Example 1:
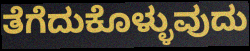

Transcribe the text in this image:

ತೆಗೆದುಕೊಳ್ಳುವುದು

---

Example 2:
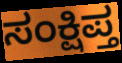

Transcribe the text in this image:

ಸಂಕ್ಷಿಪ್ತ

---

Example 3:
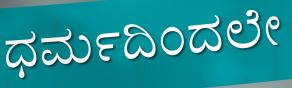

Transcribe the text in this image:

ಧರ್ಮದಿಂದಲೇ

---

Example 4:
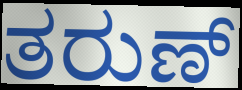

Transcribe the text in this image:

ತರುಣ್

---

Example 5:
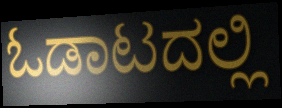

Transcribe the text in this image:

ಓಡಾಟದಲ್ಲಿ